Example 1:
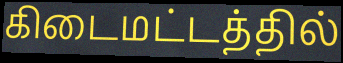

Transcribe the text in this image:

கிடைமட்டத்தில்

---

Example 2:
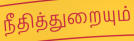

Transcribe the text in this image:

நீதித்துறையும்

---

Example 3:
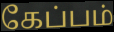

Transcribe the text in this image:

கேப்பம்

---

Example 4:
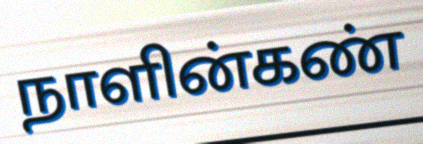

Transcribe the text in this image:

நாளின்கண்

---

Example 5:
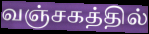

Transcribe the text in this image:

வஞ்சகத்தில்